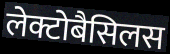
लेक्टोबैसिलस